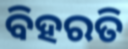
ବିହରତି